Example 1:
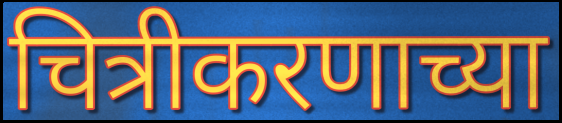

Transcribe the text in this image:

चित्रीकरणाच्या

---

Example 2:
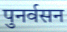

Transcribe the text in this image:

पुनर्वसन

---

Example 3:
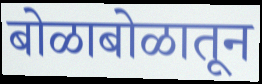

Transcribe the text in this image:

बोळाबोळातून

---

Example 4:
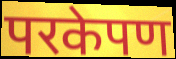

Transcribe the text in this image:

परकेपण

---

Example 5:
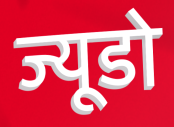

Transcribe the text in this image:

ज्यूडो